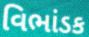
વિભાંડક